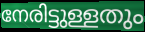
നേരിട്ടുള്ളതും